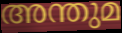
അന്തുമ